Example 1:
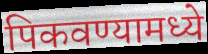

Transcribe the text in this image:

पिकवण्यामध्ये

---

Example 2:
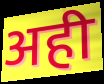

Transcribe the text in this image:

अही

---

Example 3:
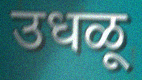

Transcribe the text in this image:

उधळू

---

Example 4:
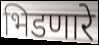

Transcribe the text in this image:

भिडणारे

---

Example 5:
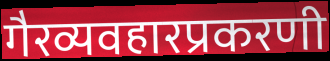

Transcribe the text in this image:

गैरव्यवहारप्रकरणी